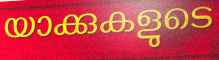
യാക്കുകളുടെ